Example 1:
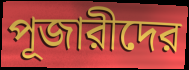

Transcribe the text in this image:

পূজারীদের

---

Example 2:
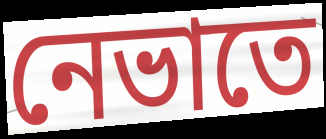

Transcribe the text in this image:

নেভাতে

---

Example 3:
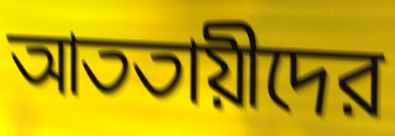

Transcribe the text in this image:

আততায়ীদের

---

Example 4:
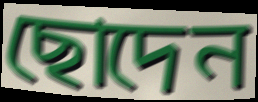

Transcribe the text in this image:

ছোদেন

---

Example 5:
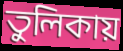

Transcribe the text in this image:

তুলিকায়